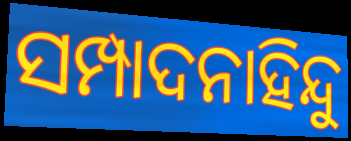
ସମ୍ପାଦନାହିନ୍ଦୁ